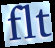
flt